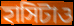
হাসিটাও